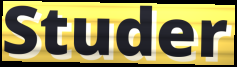
Studer